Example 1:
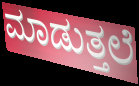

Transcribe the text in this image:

ಮಾಡುತ್ತಲೆ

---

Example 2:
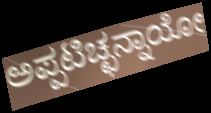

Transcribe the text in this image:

ಅಪ್ಪಟಿಚ್ಛನ್ನಾಯೋ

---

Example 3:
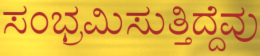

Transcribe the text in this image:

ಸಂಭ್ರಮಿಸುತ್ತಿದ್ದೆವು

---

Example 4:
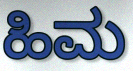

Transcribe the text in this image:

ಹಿಮ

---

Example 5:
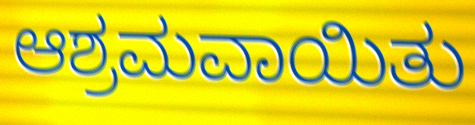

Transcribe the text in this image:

ಆಶ್ರಮವಾಯಿತು